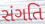
સંગતિ